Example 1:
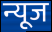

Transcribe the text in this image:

न्यूज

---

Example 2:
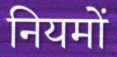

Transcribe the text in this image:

नियमों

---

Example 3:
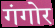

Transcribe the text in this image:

गंगोर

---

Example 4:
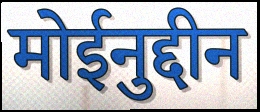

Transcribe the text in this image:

मोईनुद्दीन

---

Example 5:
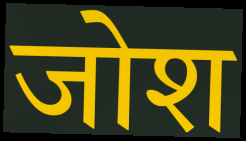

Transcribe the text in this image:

जोश